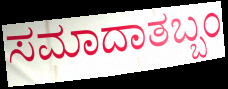
ಸಮಾದಾತಬ್ಬಂ